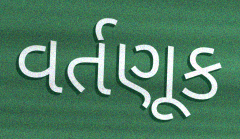
વર્તણૂક